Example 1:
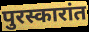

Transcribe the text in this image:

पुरस्कारांत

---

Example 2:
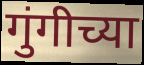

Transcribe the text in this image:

गुंगीच्या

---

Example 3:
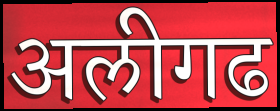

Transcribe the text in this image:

अलीगढ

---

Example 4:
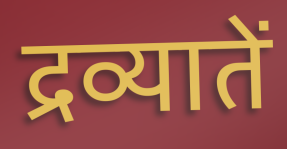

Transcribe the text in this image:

द्रव्यातें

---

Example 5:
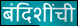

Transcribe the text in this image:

बंदिशींची